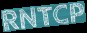
RNTCP